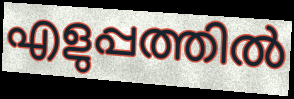
എളുപ്പത്തിൽ